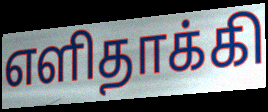
எளிதாக்கி